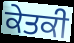
ਕੇਤਕੀ